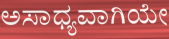
ಅಸಾಧ್ಯವಾಗಿಯೇ